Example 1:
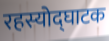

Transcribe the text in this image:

रहस्योद्घाटक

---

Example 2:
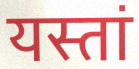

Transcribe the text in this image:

यस्तां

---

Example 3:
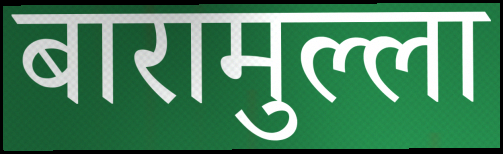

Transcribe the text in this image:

बारामुल्ला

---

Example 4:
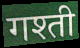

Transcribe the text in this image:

गश्‍ती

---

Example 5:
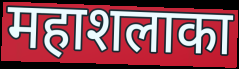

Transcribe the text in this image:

महाशलाका